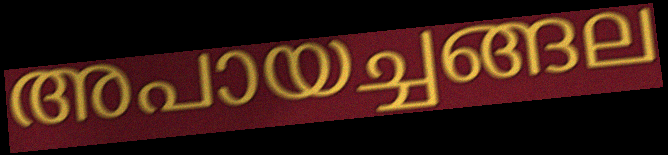
അപായച്ചങ്ങല